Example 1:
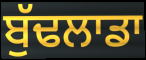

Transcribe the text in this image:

ਬੁੱਢਲਾਡਾ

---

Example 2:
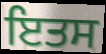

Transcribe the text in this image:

ਇਤਸ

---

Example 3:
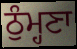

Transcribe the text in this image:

ਠੁੰਮ੍ਹਣਾ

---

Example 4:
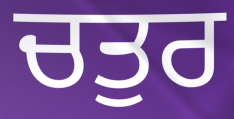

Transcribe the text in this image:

ਚਤੁਰ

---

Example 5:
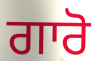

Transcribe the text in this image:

ਗਾਰੋ